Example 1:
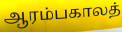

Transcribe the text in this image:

ஆரம்பகாலத்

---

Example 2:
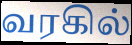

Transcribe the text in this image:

வரகில்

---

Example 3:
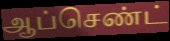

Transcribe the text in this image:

ஆப்செண்ட்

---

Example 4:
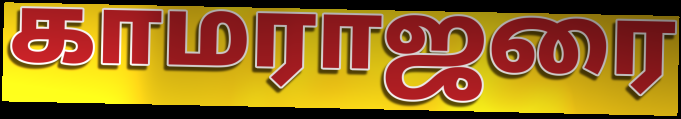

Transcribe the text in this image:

காமராஜரை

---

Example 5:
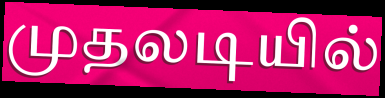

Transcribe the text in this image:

முதலடியில்